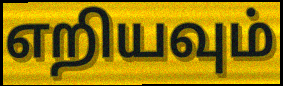
எறியவும்